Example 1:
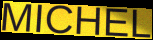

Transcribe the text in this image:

MICHEL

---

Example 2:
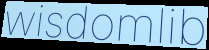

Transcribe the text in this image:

wisdomlib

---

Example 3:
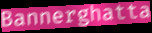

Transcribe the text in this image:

Bannerghatta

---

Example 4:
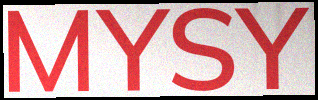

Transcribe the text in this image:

MYSY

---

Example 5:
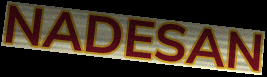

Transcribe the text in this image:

NADESAN